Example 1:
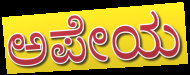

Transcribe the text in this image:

ಅಪೇಯ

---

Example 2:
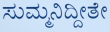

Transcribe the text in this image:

ಸುಮ್ಮನಿದ್ದೀತೇ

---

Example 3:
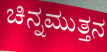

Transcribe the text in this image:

ಚಿನ್ನಮುತ್ತನ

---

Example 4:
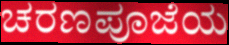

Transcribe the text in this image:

ಚರಣಪೂಜೆಯ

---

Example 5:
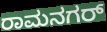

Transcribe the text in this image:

ರಾಮನಗರ್